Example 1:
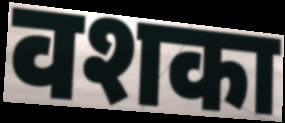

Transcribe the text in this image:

वशका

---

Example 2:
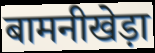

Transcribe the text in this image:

बामनीखेड़ा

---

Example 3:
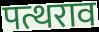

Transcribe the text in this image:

पत्थराव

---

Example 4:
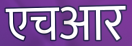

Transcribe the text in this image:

एचआर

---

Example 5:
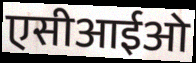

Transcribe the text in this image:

एसीआईओ